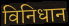
विनिधान